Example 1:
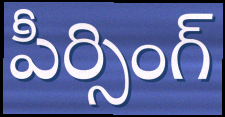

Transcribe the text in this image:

పీర్సింగ్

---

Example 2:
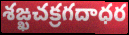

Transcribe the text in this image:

శఙ్ఖచక్రగదాధర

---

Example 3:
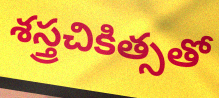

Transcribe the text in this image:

శస్త్రచికిత్సతో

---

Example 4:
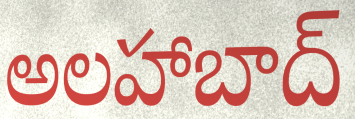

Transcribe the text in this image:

అలహాబాద్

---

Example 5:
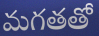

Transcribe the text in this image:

మగతతో